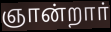
ஞான்றார்